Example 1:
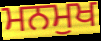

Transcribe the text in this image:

ਮਨਮੁਖ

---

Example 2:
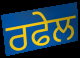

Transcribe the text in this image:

ਰਫੇਲ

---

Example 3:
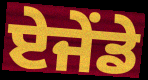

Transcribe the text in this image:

ਏਜੇਂਡੇ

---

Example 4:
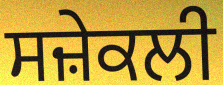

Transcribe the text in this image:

ਸਜ਼ੇਕਲੀ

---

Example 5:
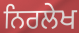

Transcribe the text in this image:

ਨਿਰਲੇਖ